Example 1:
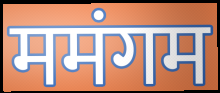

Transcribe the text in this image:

ममंगम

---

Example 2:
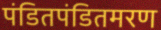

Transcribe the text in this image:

पंडितपंडितमरण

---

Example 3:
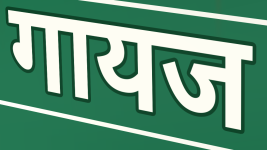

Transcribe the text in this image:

गायज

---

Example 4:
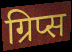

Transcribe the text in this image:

ग्रिप्स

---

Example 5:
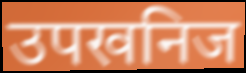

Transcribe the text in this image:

उपखनिज